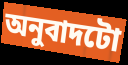
অনুবাদটো